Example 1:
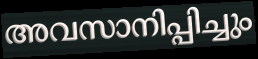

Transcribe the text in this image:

അവസാനിപ്പിച്ചും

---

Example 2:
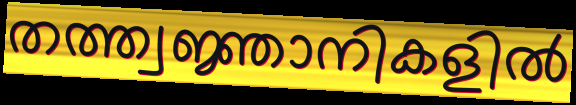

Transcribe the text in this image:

തത്ത്വജ്ഞാനികളിൽ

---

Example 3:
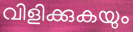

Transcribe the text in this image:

വിളിക്കുകയും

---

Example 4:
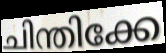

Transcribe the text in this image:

ചിന്തിക്കേ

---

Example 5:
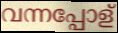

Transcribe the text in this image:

വന്നപ്പോള്